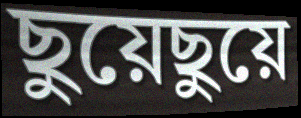
ছুয়েছুয়ে